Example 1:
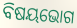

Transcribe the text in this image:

ବିଷୟଭୋଗ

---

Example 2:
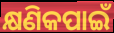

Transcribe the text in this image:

କ୍ଷଣିକପାଇଁ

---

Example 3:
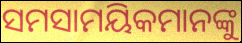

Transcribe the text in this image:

ସମସାମୟିକମାନଙ୍କୁ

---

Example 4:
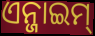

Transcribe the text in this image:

ଏନ୍ଜାଇମ୍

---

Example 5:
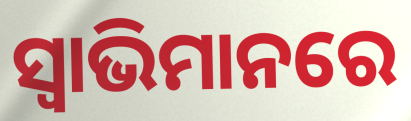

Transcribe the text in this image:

ସ୍ୱାଭିମାନରେ